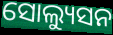
ସୋଲ୍ୟୁସନ